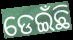
ଡେଇଁଛି